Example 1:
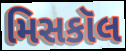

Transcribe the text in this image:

મિસકૉલ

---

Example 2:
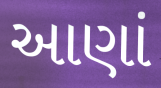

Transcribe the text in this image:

આણાં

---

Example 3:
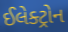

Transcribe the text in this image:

ઈલેક્ટ્રોન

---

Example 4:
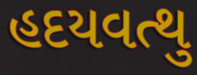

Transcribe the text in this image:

હદયવત્થુ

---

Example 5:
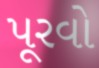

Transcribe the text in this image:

પૂરવો